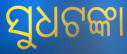
ସୁଧଟଙ୍କା